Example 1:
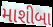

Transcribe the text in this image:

માશીબા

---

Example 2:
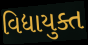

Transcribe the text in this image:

વિદ્યાયુક્ત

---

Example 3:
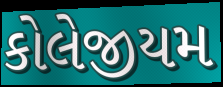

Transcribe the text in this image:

કોલેજીયમ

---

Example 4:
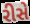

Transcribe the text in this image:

રીસે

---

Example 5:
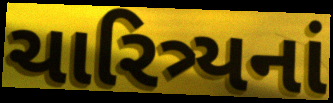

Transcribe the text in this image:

ચારિત્ર્યનાં